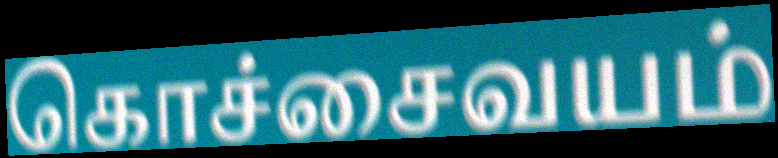
கொச்சைவயம்